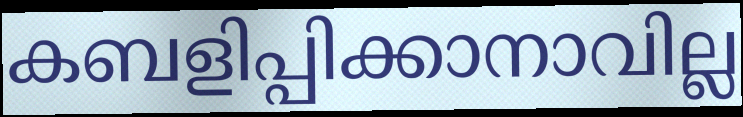
കബളിപ്പിക്കാനാവില്ല